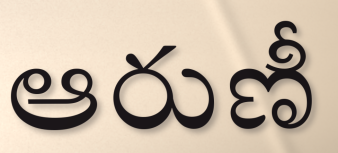
ఆరుణీ